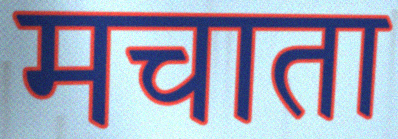
मचाता